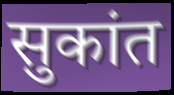
सुकांत